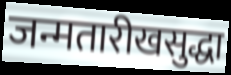
जन्मतारीखसुद्धा